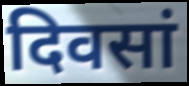
दिवसां